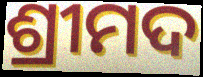
ଶ୍ରୀମଦ